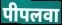
पीपलवा